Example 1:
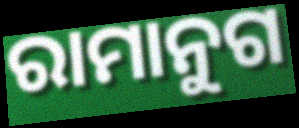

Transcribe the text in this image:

ରାମାନୁଗ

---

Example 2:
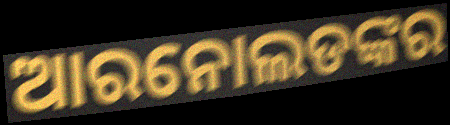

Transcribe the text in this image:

ଆରନୋଲଡଙ୍କର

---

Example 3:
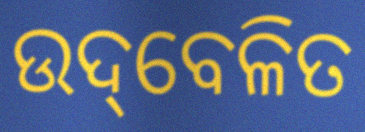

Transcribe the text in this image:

ଉଦ୍‌ବେଳିତ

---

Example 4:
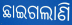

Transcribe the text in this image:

ଛାଇଗଲାଣି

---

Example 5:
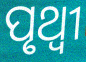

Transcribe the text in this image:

ପୃଥ୍ଵୀ